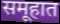
समूहात